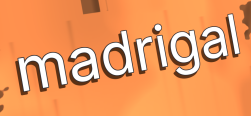
madrigal